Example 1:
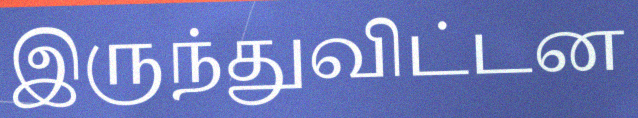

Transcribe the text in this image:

இருந்துவிட்டன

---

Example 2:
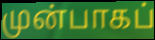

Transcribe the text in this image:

முன்பாகப்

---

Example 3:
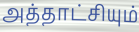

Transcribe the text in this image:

அத்தாட்சியும்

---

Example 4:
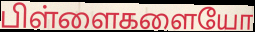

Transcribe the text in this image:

பிள்ளைகளையோ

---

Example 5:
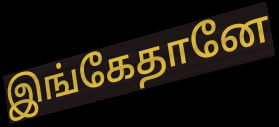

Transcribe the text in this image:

இங்கேதானே